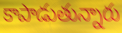
కాపాడుతున్నారు